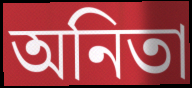
অনিতা